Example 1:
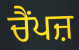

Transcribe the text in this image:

ਚੈਂਪਜ਼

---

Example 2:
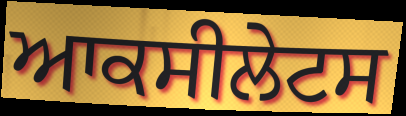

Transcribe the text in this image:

ਆਕਸੀਲੇਟਸ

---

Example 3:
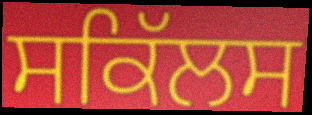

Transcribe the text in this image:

ਸਕਿੱਲਸ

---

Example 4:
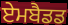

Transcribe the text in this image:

ਏਮਬੈਡਡ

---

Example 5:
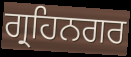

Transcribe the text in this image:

ਗ੍ਰਹਿਨਗਰ